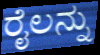
ರೈಲನ್ನು